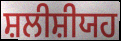
ਸ਼ਲੀਸ਼ੀਯਹ